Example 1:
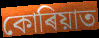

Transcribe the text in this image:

কোৰিয়াত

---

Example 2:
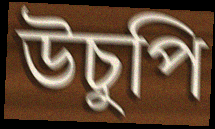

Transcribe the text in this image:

উচুপি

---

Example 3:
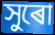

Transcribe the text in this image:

সুৰো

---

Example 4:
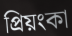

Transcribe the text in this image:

প্ৰিয়ংকা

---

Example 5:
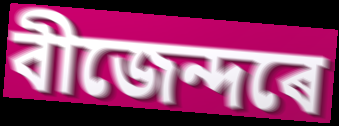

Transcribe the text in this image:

বীজেন্দৰে